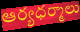
ఆర్యధర్మాలు